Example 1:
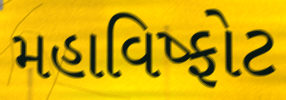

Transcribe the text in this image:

મહાવિષ્ફોટ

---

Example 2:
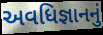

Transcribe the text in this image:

અવધિજ્ઞાનનું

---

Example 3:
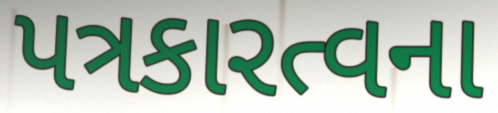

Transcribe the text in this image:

પત્રકારત્વના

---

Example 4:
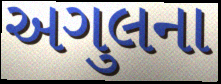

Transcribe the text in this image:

અગુલના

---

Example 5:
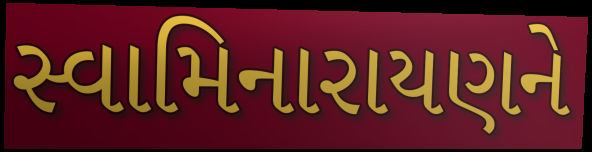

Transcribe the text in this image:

સ્વામિનારાયણને